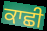
ਕਾਛੀ